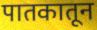
पातकातून